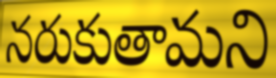
నరుకుతామని